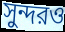
সুন্দরও